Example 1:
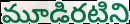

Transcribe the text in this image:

మూడిరటిని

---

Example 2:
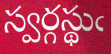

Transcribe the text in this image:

స్వర్గస్థుఁ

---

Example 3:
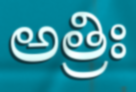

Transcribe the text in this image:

అత్రిః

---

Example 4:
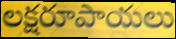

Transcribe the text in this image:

లక్షరూపాయలు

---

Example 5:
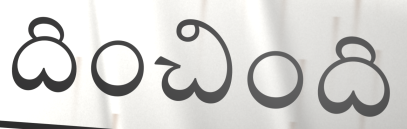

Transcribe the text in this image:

దించింది